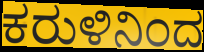
ಕರುಳಿನಿಂದ